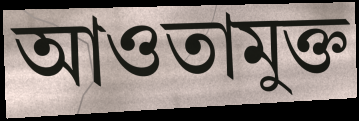
আওতামুক্ত